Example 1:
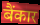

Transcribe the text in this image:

बैंकार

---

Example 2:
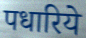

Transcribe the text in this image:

पधारिये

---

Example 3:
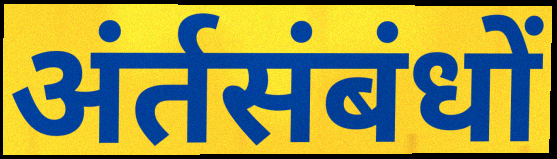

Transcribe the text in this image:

अंर्तसंबंधों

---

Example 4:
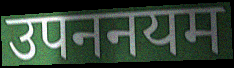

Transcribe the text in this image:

उपननयम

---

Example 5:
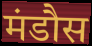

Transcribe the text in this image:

मंडौस